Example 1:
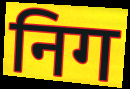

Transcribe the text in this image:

निग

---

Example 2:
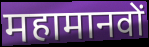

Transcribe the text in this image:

महामानवों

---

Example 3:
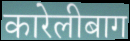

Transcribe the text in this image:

कारेलीबाग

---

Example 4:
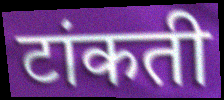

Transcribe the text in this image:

टांकती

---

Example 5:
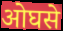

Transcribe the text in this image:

ओघसे